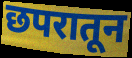
छपरातून